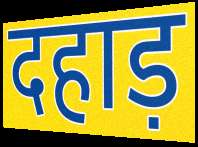
दहाड़